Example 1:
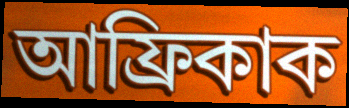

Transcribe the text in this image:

আফ্ৰিকাক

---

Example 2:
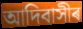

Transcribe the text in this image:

আদিবাসীৰ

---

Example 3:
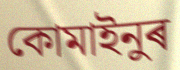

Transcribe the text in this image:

কোমাইনুৰ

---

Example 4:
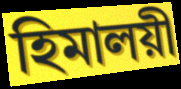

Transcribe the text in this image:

হিমালয়ী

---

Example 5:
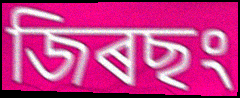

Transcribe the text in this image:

জিৰছং